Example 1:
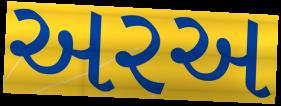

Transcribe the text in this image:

અરઅ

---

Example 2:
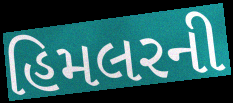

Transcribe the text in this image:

હિમલરની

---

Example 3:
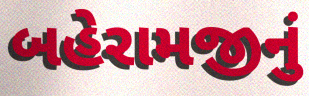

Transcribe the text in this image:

બહેરામજીનું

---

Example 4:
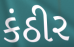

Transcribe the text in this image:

કંઠીર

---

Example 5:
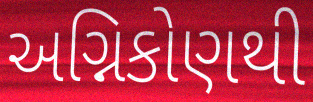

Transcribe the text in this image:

અગ્નિકોણથી